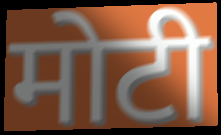
मोटी